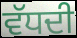
ਵੱਧਦੀ